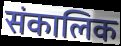
संकालिक